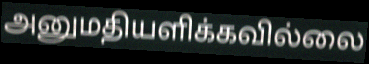
அனுமதியளிக்கவில்லை